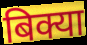
बिक्या